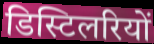
डिस्टिलरियों